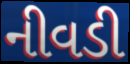
નીવડી